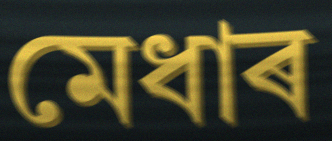
মেধাৰ